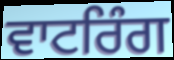
ਵਾਟਰਿੰਗ